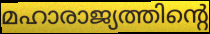
മഹാരാജ്യത്തിന്റെ